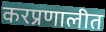
करप्रणालीत